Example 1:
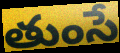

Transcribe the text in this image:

తుంసే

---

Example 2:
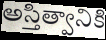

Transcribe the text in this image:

అస్తిత్వానికి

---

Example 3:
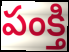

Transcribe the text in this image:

పంక్తి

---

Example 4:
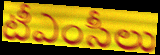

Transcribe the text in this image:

టీఎంసీలు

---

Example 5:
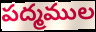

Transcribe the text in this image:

పద్మముల